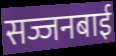
सज्जनबाई